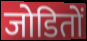
जोडितों